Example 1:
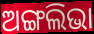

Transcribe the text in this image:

ଅଙ୍ଗଲିଭା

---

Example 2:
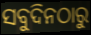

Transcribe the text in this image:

ସବୁଦିନଠାରୁ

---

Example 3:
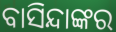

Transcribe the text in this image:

ବାସିନ୍ଦାଙ୍କର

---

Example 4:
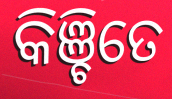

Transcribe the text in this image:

କିଞ୍ଚିତେ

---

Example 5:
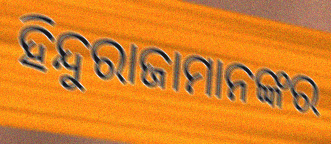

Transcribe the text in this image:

ହିନ୍ଦୁରାଜାମାନଙ୍କର